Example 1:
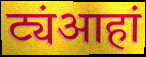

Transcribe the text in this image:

ट्यंआहां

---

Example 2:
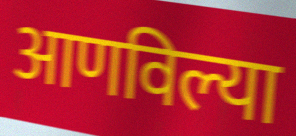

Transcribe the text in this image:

आणविल्या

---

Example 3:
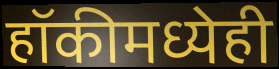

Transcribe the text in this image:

हॉकीमध्येही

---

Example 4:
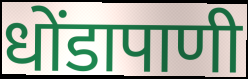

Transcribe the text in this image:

धोंडापाणी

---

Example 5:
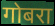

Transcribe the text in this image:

गोबरा